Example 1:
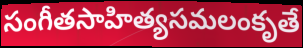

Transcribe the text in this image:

సంగీతసాహిత్యసమలంకృతే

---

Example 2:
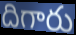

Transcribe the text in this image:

దిగారు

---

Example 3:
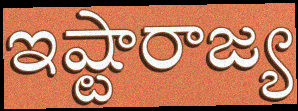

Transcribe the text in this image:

ఇష్టారాజ్య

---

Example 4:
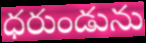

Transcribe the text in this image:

ధరుండును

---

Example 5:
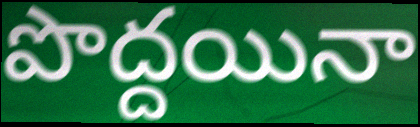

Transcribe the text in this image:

పొద్దయినా